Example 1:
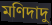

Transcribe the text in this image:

মণিদাদু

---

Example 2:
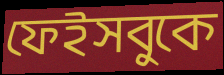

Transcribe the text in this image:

ফেইসবুকে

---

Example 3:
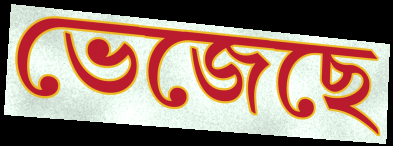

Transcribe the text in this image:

ভেজেছে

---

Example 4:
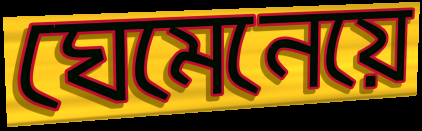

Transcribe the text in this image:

ঘেমেনেয়ে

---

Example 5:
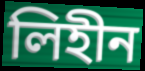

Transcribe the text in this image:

লিহীন